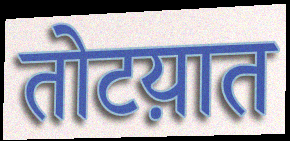
तोटय़ात